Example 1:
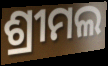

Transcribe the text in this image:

ଶ୍ରୀମଲ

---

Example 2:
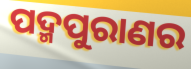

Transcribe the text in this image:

ପଦ୍ମପୁରାଣର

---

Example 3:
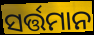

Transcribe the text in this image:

ସର୍ତ୍ତମାନ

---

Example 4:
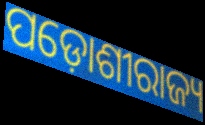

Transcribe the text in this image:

ପଡ଼ୋଶୀରାଜ୍ୟ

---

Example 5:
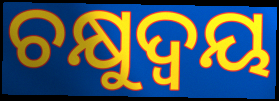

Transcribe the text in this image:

ଚକ୍ଷୁଦ୍ଵୟ